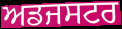
ਅਡਜਸਟਰ